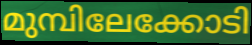
മുമ്പിലേക്കോടി